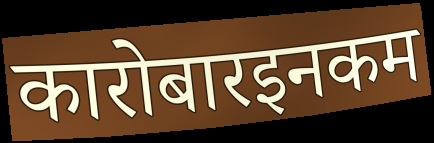
कारोबारइनकम